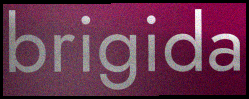
brigida